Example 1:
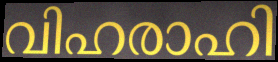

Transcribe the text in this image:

വിഹരാഹി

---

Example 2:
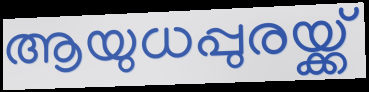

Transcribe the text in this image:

ആയുധപ്പുരയ്ക്ക്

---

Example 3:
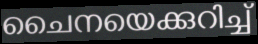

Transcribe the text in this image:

ചൈനയെക്കുറിച്ച്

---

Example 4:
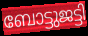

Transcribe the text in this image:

ബോട്ടുജട്ടി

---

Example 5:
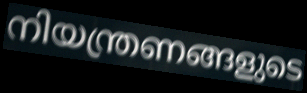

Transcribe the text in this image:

നിയന്ത്രണങ്ങളുടെ